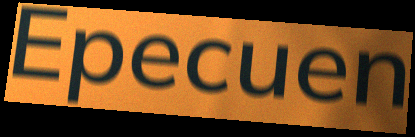
Epecuen